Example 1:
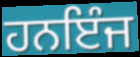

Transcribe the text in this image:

ਹਨਇੰਜ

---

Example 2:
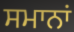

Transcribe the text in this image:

ਸਮਾਨਾਂ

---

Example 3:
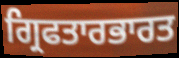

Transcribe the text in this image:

ਗ੍ਰਿਫਤਾਰਭਾਰਤ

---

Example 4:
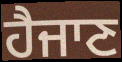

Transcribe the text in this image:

ਹੈਜਾਣ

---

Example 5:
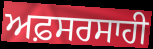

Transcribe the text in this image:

ਅਫ਼ਸਰਸਾਹੀ